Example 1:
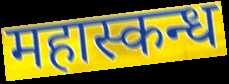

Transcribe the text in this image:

महास्कन्ध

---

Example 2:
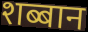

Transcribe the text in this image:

शब्बान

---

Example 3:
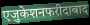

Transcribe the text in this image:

एजुकेशनफरीदाबाद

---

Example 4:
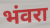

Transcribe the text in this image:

भंवरा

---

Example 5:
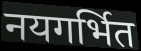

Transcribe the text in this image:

नयगर्भित